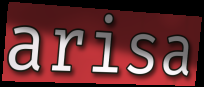
arisa